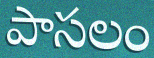
పాసలం